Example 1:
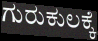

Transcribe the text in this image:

ಗುರುಕುಲಕ್ಕೆ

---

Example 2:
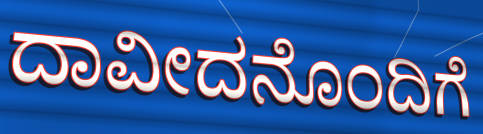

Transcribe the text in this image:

ದಾವೀದನೊಂದಿಗೆ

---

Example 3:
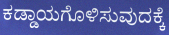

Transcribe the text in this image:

ಕಡ್ಡಾಯಗೊಳಿಸುವುದಕ್ಕೆ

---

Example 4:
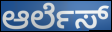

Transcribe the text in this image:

ಆರ್ಲೆಸ್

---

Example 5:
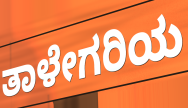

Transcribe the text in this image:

ತಾಳೇಗರಿಯ